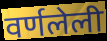
वर्णलेली